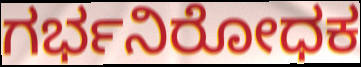
ಗರ್ಭನಿರೋಧಕ